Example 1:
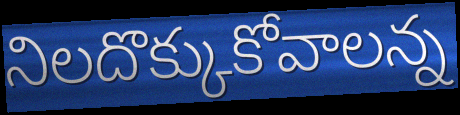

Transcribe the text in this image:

నిలదొక్కుకోవాలన్న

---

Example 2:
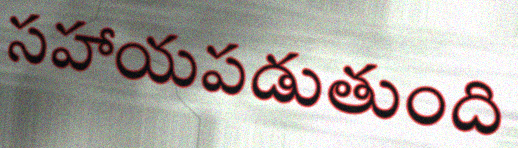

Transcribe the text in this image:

సహాయపడుతుంది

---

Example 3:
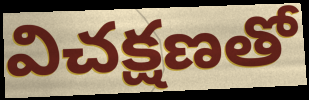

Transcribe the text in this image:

విచక్షణతో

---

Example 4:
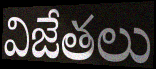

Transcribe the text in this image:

విజేతలు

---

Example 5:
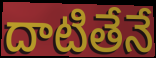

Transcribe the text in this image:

దాటితేనే